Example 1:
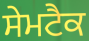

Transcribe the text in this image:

ਸੇਮਟੈਕ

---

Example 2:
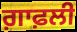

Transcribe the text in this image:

ਗ਼ਾਫ਼ਲੀ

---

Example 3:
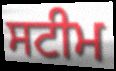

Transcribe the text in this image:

ਸਟੀਮ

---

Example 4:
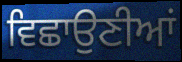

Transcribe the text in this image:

ਵਿਛਾਉਣੀਆਂ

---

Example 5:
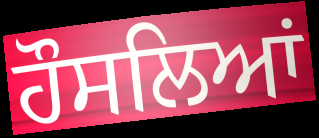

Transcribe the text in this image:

ਹੌਸਲਿਆਂ